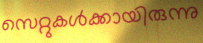
സെറ്റുകൾക്കായിരുന്നു